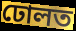
ঢোলত